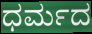
ಧರ್ಮದ